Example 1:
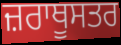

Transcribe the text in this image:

ਜ਼ਰਾਥੂਸਤਰ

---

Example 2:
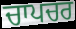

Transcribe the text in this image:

ਚਾਪਚਰ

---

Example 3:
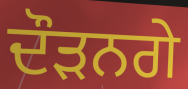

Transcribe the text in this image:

ਦੌੜਨਗੇ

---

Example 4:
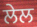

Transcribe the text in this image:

ਲੇਲ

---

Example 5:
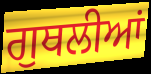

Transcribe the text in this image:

ਗੁਥਲੀਆਂ